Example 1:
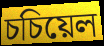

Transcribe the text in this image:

চচিয়েল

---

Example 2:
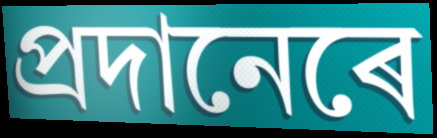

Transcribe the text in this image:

প্ৰদানেৰে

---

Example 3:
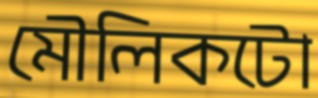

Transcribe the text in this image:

মৌলিকটো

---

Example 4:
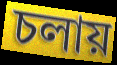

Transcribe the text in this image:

চলায়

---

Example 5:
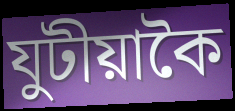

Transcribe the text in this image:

যুটীয়াকৈ